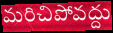
మరిచిపోవద్దు